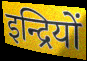
इन्द्रियों